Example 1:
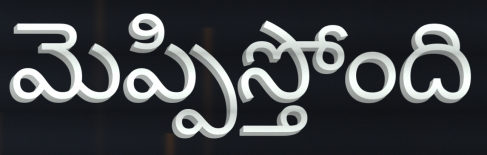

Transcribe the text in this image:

మెప్పిస్తోంది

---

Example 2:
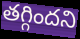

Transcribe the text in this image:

తగ్గిందని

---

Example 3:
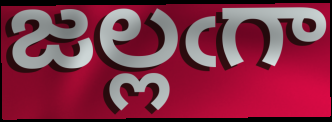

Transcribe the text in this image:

జల్లఁగా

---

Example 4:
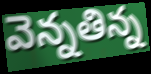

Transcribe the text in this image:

వెన్నతిన్న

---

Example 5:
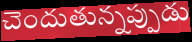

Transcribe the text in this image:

చెందుతున్నప్పుడు